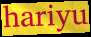
hariyu